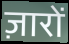
ज़ारों